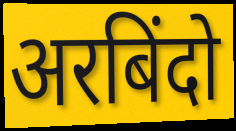
अरबिंदो